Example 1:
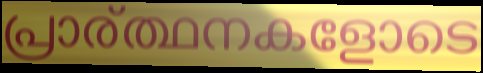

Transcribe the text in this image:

പ്രാര്ത്ഥനകളോടെ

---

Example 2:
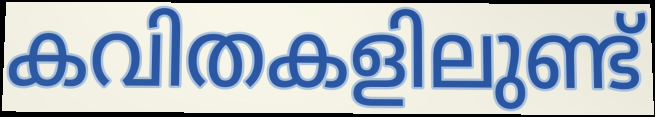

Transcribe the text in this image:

കവിതകളിലുണ്ട്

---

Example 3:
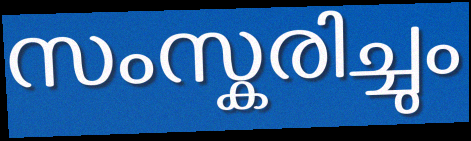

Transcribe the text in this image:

സംസ്കരിച്ചും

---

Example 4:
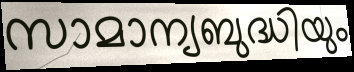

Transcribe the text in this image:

സാമാന്യബുദ്ധിയും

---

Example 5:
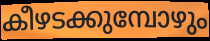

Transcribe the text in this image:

കീഴടക്കുമ്പോഴും